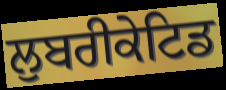
ਲੁਬਰੀਕੇਟਿਡ